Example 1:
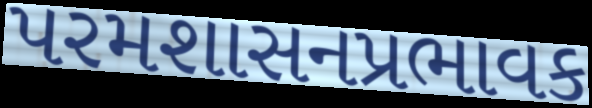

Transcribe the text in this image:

પરમશાસનપ્રભાવક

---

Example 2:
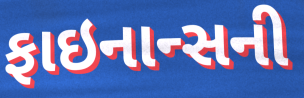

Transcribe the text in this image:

ફાઇનાન્સની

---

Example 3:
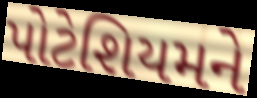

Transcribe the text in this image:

પોટેશિયમને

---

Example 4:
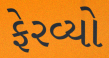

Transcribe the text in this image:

ફેરવ્યો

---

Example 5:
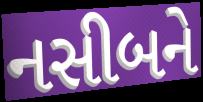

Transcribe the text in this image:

નસીબને